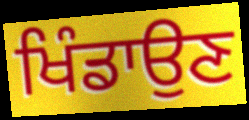
ਖਿੰਡਾਉਣ